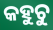
କହୁଚୁ